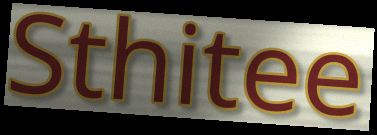
Sthitee